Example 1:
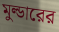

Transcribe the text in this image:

মুল্ডারের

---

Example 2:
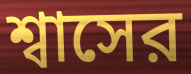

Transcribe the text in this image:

শ্বাসের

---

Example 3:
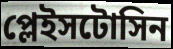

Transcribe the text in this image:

প্লেইসটোসিন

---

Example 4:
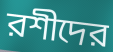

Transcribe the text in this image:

রশীদের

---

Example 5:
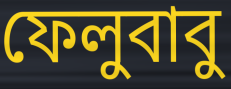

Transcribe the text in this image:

ফেলুবাবু